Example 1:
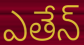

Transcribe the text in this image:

ఎతేన్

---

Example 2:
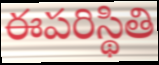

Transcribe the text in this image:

ఈపరిస్థితి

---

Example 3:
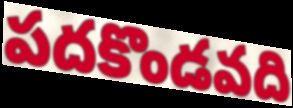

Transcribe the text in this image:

పదకొండవది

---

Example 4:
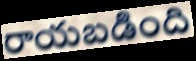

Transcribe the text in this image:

రాయబడింది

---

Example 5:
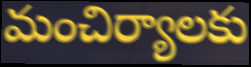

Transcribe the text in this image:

మంచిర్యాలకు